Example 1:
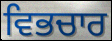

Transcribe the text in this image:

ਵਿਭਚਾਰ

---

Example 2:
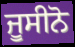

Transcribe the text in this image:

ਜੂਸੀਨੋ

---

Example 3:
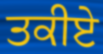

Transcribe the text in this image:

ਤਕੀਏ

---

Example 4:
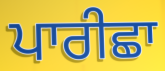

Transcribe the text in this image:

ਪਾਰੀਛਾ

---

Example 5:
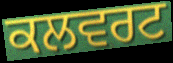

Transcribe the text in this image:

ਕਲਵਰਟ